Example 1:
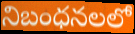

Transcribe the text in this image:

నిబంధనలలో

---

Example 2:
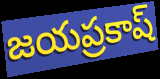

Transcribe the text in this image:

జయప్రకాష్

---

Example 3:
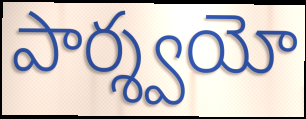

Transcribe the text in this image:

పార్శ్వయో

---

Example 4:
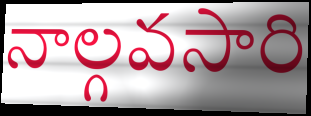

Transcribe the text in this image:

నాల్గవసారి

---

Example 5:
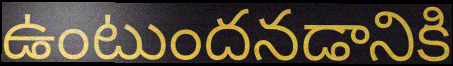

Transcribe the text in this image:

ఉంటుందనడానికి